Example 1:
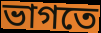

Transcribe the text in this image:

ভাগতে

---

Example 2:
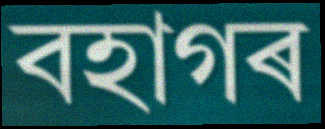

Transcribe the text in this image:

বহাগৰ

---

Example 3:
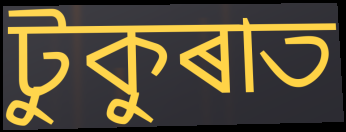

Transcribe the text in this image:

টুকুৰাত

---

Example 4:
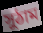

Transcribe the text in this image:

সুঠাম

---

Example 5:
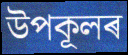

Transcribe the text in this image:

উপকূলৰ